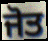
ਜੋਤ